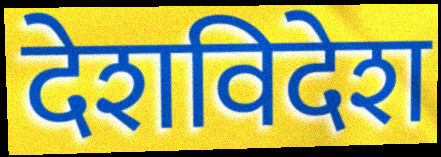
देशविदेश